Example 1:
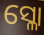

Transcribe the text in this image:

ସ୍ଳୋ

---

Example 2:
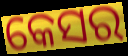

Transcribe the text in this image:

କେସର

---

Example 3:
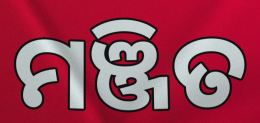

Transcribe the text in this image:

ମଞ୍ଜିତ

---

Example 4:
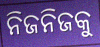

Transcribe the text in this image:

ନିଜନିଜକୁ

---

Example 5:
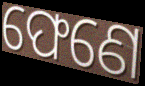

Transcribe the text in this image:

ଫେଣେ